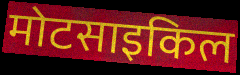
मोटसाइकिल